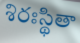
శిరఃస్థితా